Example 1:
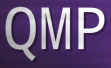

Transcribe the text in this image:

QMP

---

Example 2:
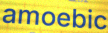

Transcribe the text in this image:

amoebic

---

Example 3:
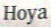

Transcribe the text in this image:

Hoya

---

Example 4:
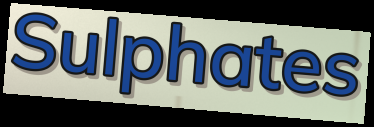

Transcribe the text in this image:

Sulphates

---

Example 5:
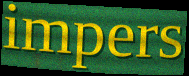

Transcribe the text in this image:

impers